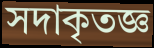
সদাকৃতজ্ঞ